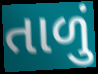
તાળું